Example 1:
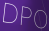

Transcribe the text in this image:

DPO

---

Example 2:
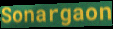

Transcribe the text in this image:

Sonargaon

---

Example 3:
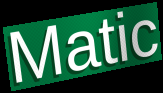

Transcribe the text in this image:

Matic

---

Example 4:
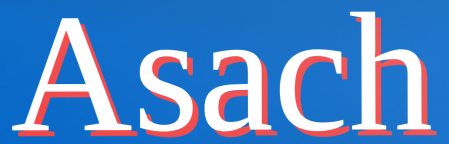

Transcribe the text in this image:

Asach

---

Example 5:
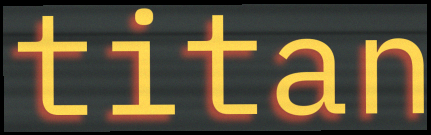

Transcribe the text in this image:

titan